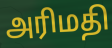
அரிமதி